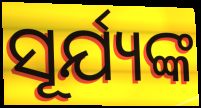
ସୂର୍ଯ୍ୟଙ୍କ